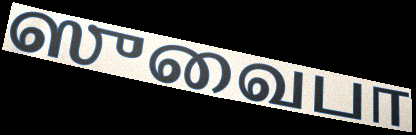
ஸுவைபா